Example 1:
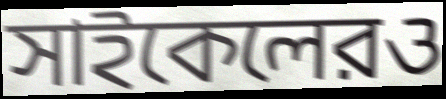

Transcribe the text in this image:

সাইকেলেরও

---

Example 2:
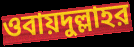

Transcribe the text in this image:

ওবায়দুল্লাহর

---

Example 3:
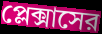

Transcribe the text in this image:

প্লেক্সাসের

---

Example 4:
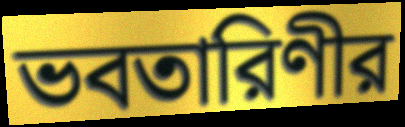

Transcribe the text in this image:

ভবতারিণীর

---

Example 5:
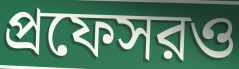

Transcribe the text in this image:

প্রফেসরও